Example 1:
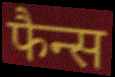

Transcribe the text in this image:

फैन्स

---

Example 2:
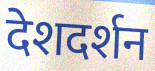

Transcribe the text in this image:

देशदर्शन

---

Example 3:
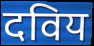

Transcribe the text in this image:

दविय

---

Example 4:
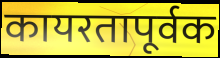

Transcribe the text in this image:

कायरतापूर्वक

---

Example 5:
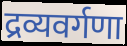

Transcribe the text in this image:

द्रव्यवर्गणा